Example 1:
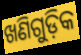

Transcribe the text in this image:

ଖଣିଗୁଡ଼ିକ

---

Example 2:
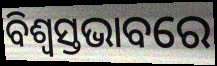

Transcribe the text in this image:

ବିଶ୍ୱସ୍ତଭାବରେ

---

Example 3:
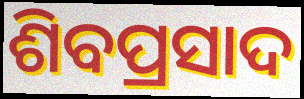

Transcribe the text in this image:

ଶିବପ୍ରସାଦ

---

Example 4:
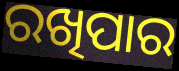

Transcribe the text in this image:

ରଖିପାର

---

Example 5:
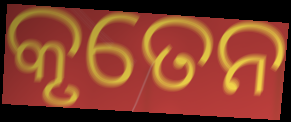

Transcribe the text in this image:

କୃତେନ